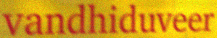
vandhiduveer